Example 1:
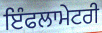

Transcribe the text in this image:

ਇੰਫਲਾਮੇਟਰੀ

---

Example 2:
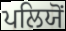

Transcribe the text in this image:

ਪਲਿਯੋਂ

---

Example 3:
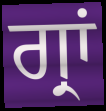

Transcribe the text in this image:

ਗ੍ਰਾਂ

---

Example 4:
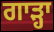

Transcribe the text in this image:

ਗਾੜ੍ਹਾ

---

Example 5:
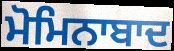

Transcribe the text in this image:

ਮੋਮਿਨਾਬਾਦ